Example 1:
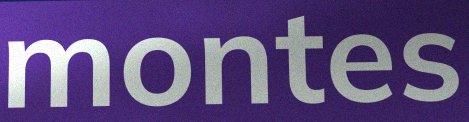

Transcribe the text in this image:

montes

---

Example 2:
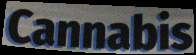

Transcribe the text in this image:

Cannabis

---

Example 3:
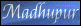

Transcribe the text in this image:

Madhupur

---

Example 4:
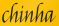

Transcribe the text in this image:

chinha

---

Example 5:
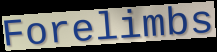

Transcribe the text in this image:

Forelimbs